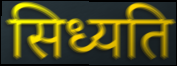
सिध्यति